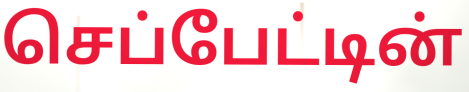
செப்பேட்டின்